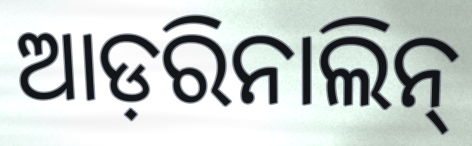
ଆଡ଼ରିନାଲିନ୍